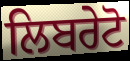
ਲਿਬਰੇਟੋ